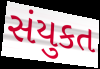
સંયુકત